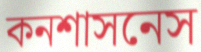
কনশাসনেস